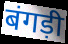
बंगड़ी